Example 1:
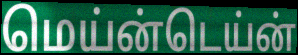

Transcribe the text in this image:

மெய்ன்டெய்ன்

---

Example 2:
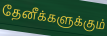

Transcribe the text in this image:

தேனீக்களுக்கும்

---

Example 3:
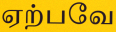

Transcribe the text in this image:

ஏற்பவே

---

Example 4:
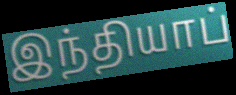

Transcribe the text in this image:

இந்தியாப்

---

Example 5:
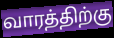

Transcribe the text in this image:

வாரத்திற்கு